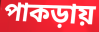
পাকড়ায়